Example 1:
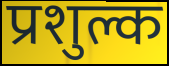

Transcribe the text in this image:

प्रशुल्क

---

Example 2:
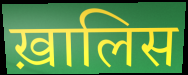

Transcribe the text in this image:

ख़ालिस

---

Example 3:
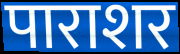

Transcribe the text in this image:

पाराशर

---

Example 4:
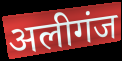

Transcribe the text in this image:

अलीगंज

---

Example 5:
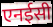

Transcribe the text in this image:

एनईसी